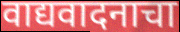
वाद्यवादनाचा